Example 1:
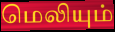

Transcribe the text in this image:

மெலியும்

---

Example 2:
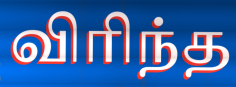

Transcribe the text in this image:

விரிந்த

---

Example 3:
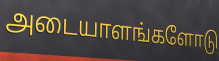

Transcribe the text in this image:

அடையாளங்களோடு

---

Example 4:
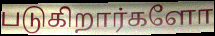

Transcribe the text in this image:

படுகிறார்களோ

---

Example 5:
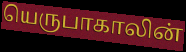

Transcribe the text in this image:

யெருபாகாலின்